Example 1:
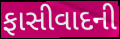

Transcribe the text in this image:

ફાસીવાદની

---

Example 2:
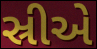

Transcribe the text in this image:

સ્રીએ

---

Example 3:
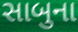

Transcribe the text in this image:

સાબુના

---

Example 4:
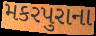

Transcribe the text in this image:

મકરપુરાના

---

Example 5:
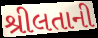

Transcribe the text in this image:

શ્રીલતાની